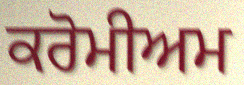
ਕਰੋਮੀਅਮ